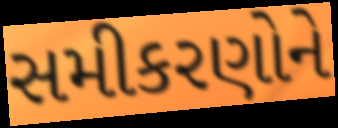
સમીકરણોને